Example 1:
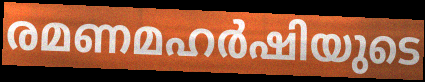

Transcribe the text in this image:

രമണമഹർഷിയുടെ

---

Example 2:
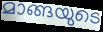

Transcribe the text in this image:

മാങ്ങയുടെ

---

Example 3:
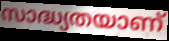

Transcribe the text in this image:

സാദ്ധ്യതയാണ്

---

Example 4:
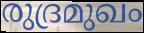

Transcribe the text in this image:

രുദ്രമുഖം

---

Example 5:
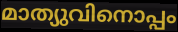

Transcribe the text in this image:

മാത്യുവിനൊപ്പം